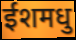
ईशमधु